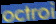
octroi